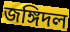
জঙ্গিদল